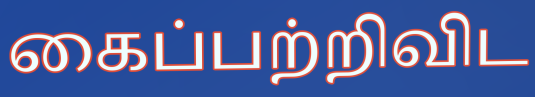
கைப்பற்றிவிட